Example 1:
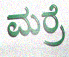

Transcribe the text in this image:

ಮರ್ರೆ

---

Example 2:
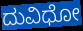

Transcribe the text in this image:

ದುವಿಧೋ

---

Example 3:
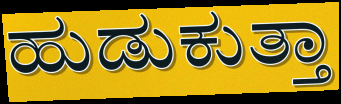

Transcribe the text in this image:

ಹುಡುಕುತ್ತಾ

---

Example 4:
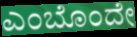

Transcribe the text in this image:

ಎಂಬೊಂದೇ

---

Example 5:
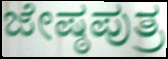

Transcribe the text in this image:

ಜೇಷ್ಠಪುತ್ರ